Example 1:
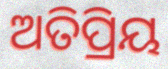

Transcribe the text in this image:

ଅତିପ୍ରିୟ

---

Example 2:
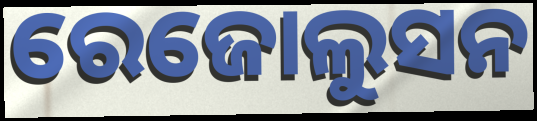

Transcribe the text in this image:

ରେଜୋଲୁସନ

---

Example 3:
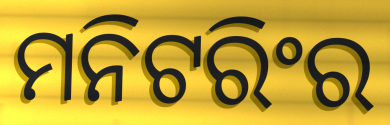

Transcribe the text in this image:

ମନିଟରିଂର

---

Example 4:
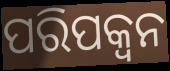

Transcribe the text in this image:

ପରିପକ୍ବନ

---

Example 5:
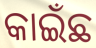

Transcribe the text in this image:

କାଇଁଛ